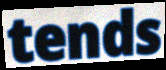
tends